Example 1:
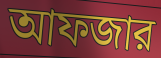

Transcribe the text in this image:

আফজার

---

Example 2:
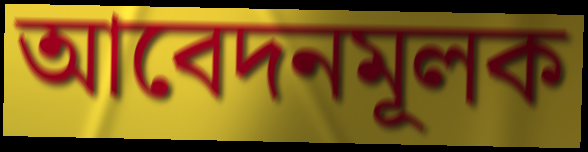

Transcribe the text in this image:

আবেদনমূলক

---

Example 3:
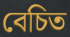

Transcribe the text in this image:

বেচিত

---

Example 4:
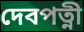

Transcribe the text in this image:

দেবপত্নী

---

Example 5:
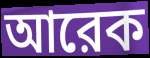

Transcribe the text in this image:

আরেক